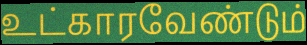
உட்காரவேண்டும்